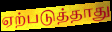
ஏற்படுத்தாது